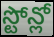
స్టోన్లో